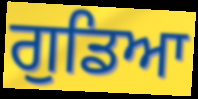
ਗੁਡਿਆ